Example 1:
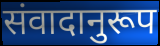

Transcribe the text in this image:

संवादानुरूप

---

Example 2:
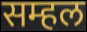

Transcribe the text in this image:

सम्हल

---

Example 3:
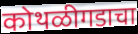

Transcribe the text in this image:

कोथळीगडाचा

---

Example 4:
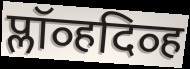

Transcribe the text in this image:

प्लॉव्हदिव्ह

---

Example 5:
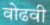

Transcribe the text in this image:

वोढवी